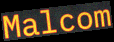
Malcom